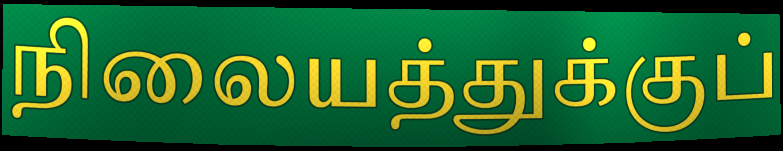
நிலையத்துக்குப்